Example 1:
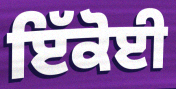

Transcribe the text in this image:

ਇੱਕੋਈ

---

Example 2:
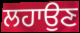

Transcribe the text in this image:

ਲਹਾਉਣ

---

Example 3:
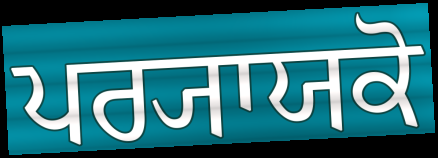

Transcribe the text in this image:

ਪਰ੍ਯਾਯਕੋ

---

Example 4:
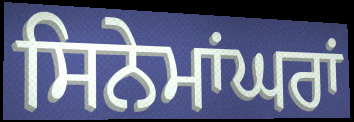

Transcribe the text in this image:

ਸਿਨੇਮਾਂਘਰਾਂ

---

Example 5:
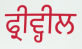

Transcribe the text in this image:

ਫ੍ਰੀਵ੍ਹੀਲ